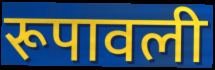
रूपावली